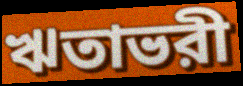
ঋতাভরী